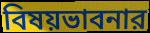
বিষয়ভাবনার